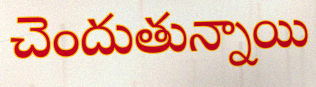
చెందుతున్నాయి